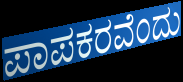
ಪಾಪಕರವೆಂದು